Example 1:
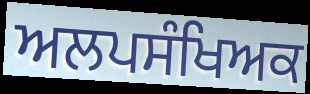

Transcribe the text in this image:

ਅਲਪਸੰਖਿਅਕ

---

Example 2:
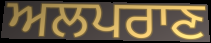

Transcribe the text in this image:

ਅਲਪਰਾਣ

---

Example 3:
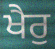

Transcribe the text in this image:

ਖੈਰੁ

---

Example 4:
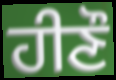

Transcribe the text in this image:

ਹੀਣੌ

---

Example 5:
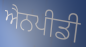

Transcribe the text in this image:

ਐਨਪੀਡੀ